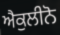
ਐਕੁਲੀਨੋ